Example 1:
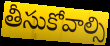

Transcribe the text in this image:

తీసుకోవాల్సి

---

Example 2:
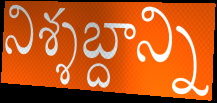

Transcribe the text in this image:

నిశ్శబ్దాన్ని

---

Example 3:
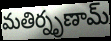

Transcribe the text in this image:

మతిర్నృణామ్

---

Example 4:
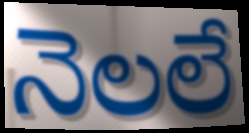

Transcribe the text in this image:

నెలలే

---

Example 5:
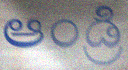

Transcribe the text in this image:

ఆండ్రి